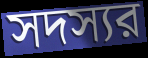
সদস্যর